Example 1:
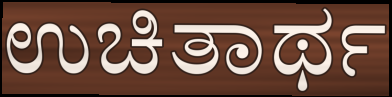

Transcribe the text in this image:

ಉಚಿತಾರ್ಥ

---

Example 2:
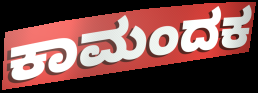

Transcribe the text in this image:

ಕಾಮಂದಕ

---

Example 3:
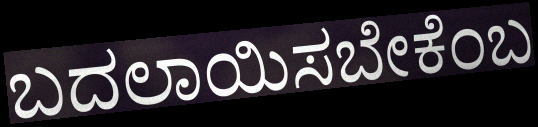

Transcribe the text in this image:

ಬದಲಾಯಿಸಬೇಕೆಂಬ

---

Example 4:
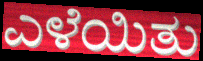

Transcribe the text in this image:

ಎಳೆಯಿತು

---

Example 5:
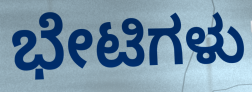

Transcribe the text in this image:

ಭೇಟಿಗಳು